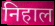
निहाल